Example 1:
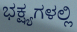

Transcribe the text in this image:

ಭಕ್ಷ್ಯಗಳಲ್ಲಿ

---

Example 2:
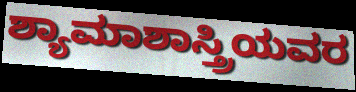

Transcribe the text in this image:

ಶ್ಯಾಮಾಶಾಸ್ತ್ರಿಯವರ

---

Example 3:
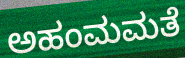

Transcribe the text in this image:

ಅಹಂಮಮತೆ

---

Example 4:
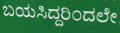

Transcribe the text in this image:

ಬಯಸಿದ್ದರಿಂದಲೇ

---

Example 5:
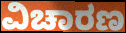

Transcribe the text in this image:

ವಿಚಾರಣ